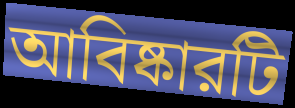
আবিষ্কারটি